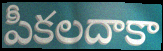
పీకలదాకా